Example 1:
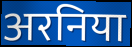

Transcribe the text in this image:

अरनिया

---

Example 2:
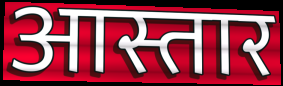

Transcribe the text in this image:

आस्तार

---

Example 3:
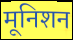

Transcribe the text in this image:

मूनिशन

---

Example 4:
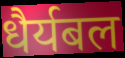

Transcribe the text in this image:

धैर्यबल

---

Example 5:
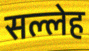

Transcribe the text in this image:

सल्लेह